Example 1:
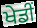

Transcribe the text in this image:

ਖੇਡੀਂ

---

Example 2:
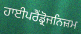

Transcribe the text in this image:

ਹਾਈਪਰੈਂਡ੍ਰੋਜਨਿਜ਼ਮ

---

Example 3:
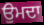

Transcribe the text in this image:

ਉਮਦਾ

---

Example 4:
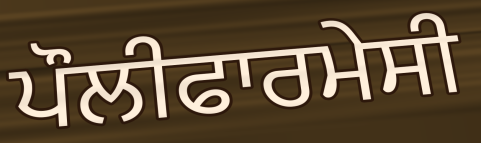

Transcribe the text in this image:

ਪੌਲੀਫਾਰਮੇਸੀ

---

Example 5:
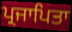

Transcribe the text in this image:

ਪ੍ਰਜਾਪਿਤਾ